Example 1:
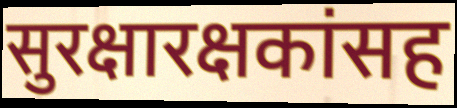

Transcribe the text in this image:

सुरक्षारक्षकांसह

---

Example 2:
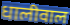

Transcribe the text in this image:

धालीवाल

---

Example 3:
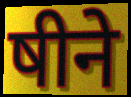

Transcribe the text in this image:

षीने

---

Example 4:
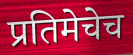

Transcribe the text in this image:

प्रतिमेचेच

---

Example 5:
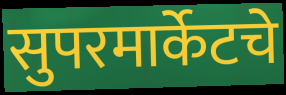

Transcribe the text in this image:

सुपरमार्केटचे